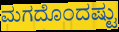
ಮಗದೊಂದಷ್ಟು